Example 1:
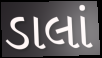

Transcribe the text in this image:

ડાલાં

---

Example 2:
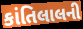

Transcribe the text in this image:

કાંતિલાલની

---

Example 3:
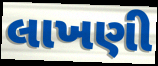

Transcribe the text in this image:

લાખણી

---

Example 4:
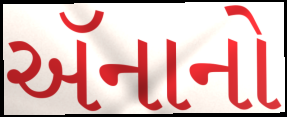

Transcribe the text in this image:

ઍનાનો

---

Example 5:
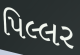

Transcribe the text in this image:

પિલ્લર